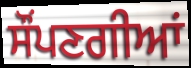
ਸੌਂਪਣਗੀਆਂ